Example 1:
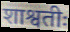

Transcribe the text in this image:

शाश्वतीः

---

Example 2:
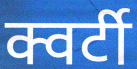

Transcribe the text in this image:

क्वर्टी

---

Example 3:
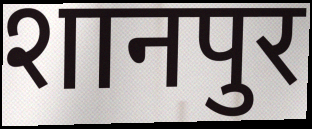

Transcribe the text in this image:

शानपुर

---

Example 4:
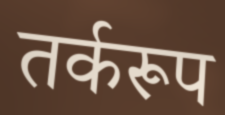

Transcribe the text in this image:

तर्करूप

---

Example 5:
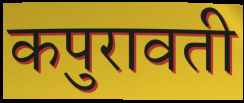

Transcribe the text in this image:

कपुरावती